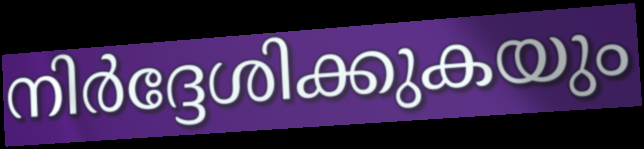
നിർദ്ദേശിക്കുകയും